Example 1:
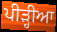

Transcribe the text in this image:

ਪੀੜ੍ਹੀਆ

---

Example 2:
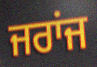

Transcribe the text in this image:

ਜਰਾਂਜ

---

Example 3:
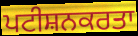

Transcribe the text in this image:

ਪਟੀਸ਼ਨਕਰਤਾ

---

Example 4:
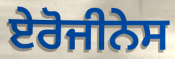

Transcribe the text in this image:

ਏਰੋਜੀਨੇਸ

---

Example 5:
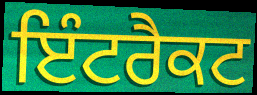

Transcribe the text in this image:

ਇੰਟਰੈਕਟ